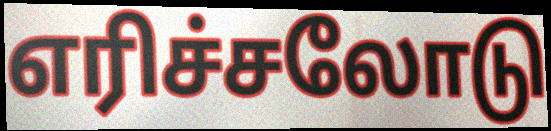
எரிச்சலோடு